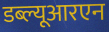
डब्ल्यूआरएन